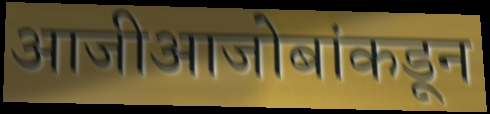
आजीआजोबांकडून